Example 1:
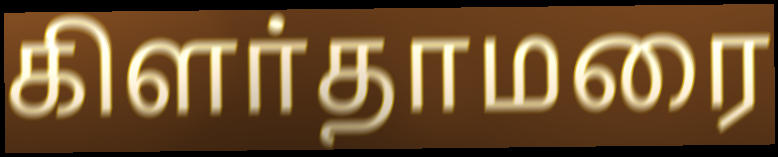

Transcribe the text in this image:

கிளர்தாமரை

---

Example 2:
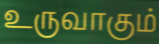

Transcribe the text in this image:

உருவாகும்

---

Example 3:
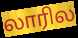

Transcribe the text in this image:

லாரில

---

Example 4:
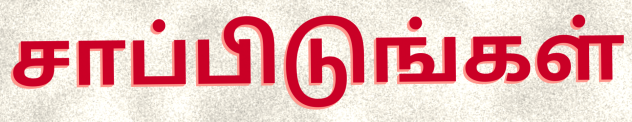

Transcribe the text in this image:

சாப்பிடுங்கள்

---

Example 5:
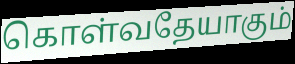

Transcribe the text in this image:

கொள்வதேயாகும்